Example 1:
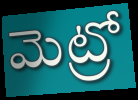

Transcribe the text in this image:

మెట్రో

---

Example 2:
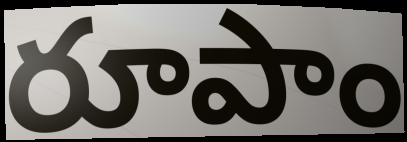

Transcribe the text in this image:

రూపాం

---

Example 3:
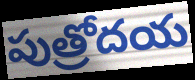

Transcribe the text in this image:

పుత్రోదయ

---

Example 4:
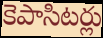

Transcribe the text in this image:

కెపాసిటర్లు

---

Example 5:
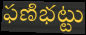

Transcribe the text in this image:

ఫణిభట్టు